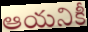
ఆయనికీ